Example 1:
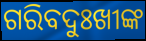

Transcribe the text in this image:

ଗରିବଦୁଃଖୀଙ୍କ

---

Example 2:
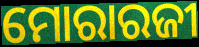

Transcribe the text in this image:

ମୋରାରଜୀ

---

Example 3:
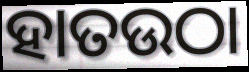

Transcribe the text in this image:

ହାତଉଠା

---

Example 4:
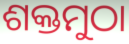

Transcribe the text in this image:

ଶକ୍ତମୁଠା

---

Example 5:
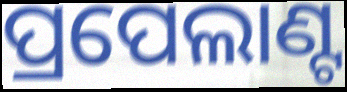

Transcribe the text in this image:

ପ୍ରପେଲାଣ୍ଟ